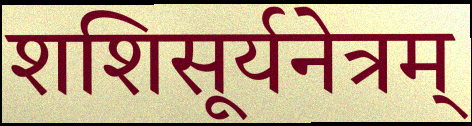
शशिसूर्यनेत्रम्